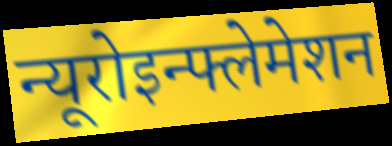
न्यूरोइन्फ्लेमेशन